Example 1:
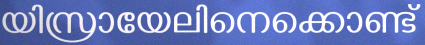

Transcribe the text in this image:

യിസ്രായേലിനെക്കൊണ്ട്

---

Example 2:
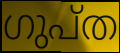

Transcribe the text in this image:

ഗുപ്ത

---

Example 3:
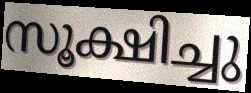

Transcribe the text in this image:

സൂക്ഷിച്ചു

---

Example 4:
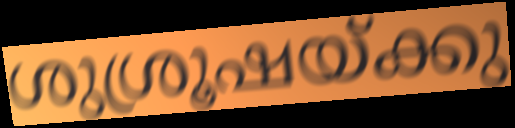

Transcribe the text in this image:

ശുശ്രൂഷയ്ക്കു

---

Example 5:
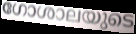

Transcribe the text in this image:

ഗോശാലയുടെ